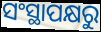
ସଂସ୍ଥାପକ୍ଷରୁ